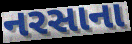
નરસાના